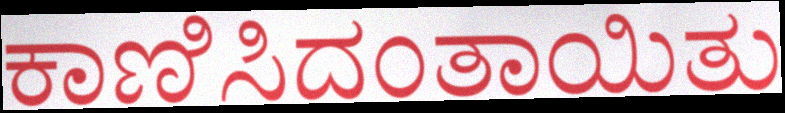
ಕಾಣಿಸಿದಂತಾಯಿತು